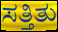
ಸತ್ತಿತು